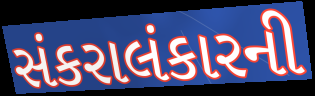
સંકરાલંકારની